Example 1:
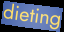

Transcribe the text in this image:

dieting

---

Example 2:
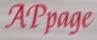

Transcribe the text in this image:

APpage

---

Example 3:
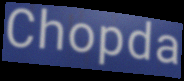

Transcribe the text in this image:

Chopda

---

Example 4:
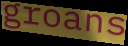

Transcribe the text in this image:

groans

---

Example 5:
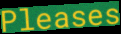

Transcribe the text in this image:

Pleases